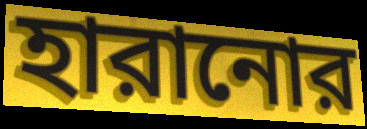
হারানোর